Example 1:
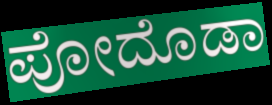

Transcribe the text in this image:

ಪೋದೊಡಾ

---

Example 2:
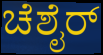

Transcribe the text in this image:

ಚೆಶೈರ್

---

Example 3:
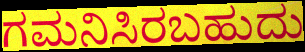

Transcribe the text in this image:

ಗಮನಿಸಿರಬಹುದು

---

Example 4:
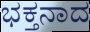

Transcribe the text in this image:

ಭಕ್ತನಾದ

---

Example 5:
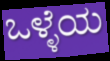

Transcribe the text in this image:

ಒಳ್ಳೆಯ